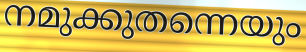
നമുക്കുതന്നെയും